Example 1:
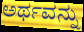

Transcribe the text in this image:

ಅರ್ಥವನ್ನು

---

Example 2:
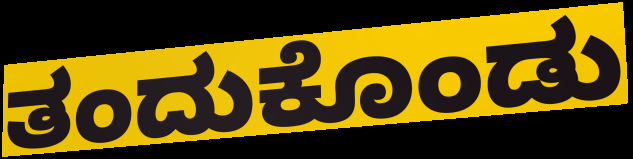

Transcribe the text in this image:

ತಂದುಕೊಂಡು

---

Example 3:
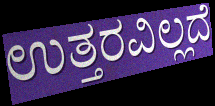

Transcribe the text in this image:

ಉತ್ತರವಿಲ್ಲದೆ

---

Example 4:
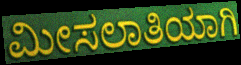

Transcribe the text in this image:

ಮೀಸಲಾತಿಯಾಗಿ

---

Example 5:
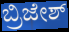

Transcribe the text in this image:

ಬ್ರಿಜೇಶ್